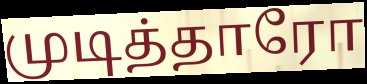
முடித்தாரோ